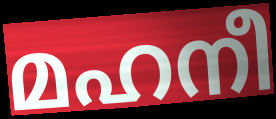
മഹനീ